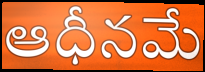
ఆధీనమే